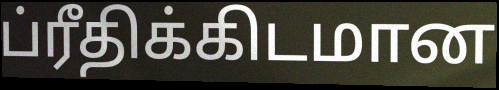
ப்ரீதிக்கிடமான